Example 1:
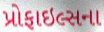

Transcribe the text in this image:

પ્રોફાઇલ્સના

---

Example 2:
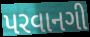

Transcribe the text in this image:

પરવાનગી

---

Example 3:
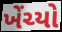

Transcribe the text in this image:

ખેંચ્યો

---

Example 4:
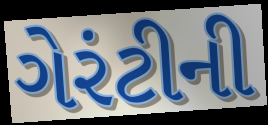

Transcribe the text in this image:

ગેરંટીની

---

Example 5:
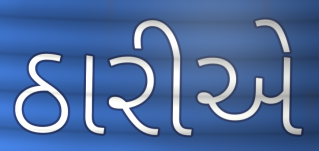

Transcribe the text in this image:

ઠારીએ